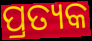
ପ୍ରତ୍ୟକ